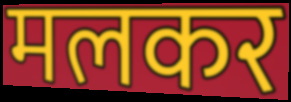
मलकर